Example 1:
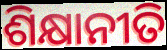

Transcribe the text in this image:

ଶିକ୍ଷାନୀତି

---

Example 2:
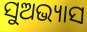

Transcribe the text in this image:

ସୁଅଭ୍ୟାସ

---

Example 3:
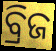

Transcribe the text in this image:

ବ୍ରିଜ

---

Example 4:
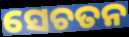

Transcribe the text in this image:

ସେଚତନ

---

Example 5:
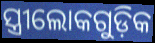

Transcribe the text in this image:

ସ୍ତ୍ରୀଲୋକଗୁଡ଼ିକ